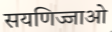
सयणिज्जाओ